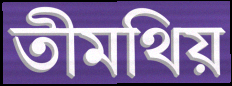
তীমথিয়